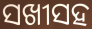
ସଖୀସହ